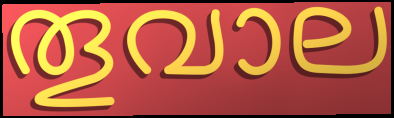
തൂവാല